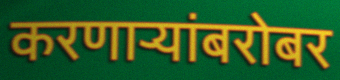
करणार्‍यांबरोबर